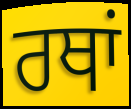
ਰਥਾਂ